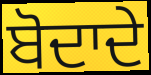
ਬੋਦਾਦੇ